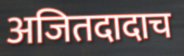
अजितदादाच